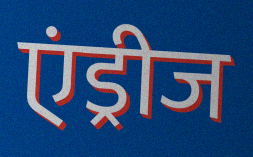
एंड्रीज